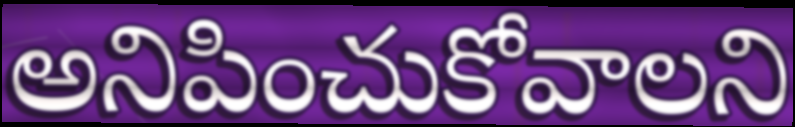
అనిపించుకోవాలని